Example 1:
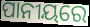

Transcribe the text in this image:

ପାନୀୟରେ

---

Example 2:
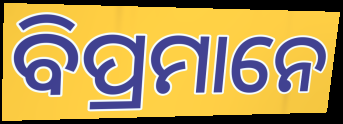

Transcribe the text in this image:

ବିପ୍ରମାନେ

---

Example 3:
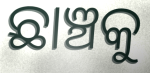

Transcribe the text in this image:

ଛାଞ୍ଚକୁ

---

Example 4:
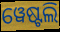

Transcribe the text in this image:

ୱେଷ୍ଟଲି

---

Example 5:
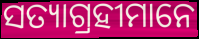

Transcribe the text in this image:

ସତ୍ୟାଗ୍ରହୀମାନେ